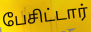
பேசிட்டார்